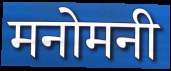
मनोमनी